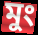
মুং